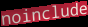
noinclude